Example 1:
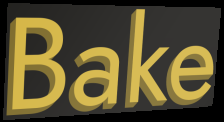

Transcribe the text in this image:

Bake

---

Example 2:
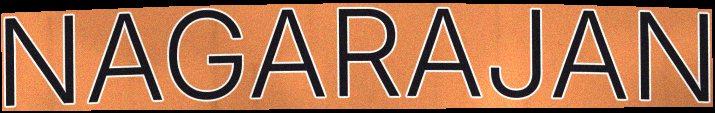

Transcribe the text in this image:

NAGARAJAN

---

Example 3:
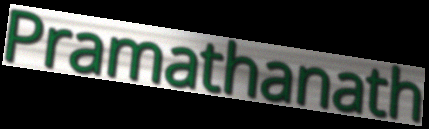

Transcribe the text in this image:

Pramathanath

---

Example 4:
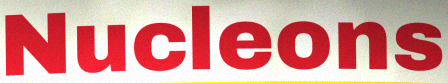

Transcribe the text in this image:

Nucleons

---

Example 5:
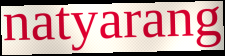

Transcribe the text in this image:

natyarang